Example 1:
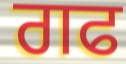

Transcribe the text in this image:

ਗਫ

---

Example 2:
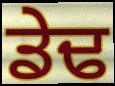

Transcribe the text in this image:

ਡੇਢ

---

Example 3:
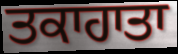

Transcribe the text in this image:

ਤਕਾਹਾਤਾ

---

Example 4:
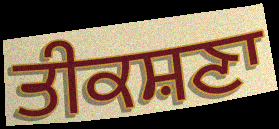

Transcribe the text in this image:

ਤੀਕਸ਼ਣਾ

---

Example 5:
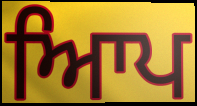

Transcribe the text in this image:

ਆਿਪ